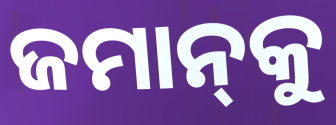
ଜମାନ୍‍କୁ